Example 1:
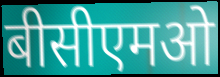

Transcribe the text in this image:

बीसीएमओ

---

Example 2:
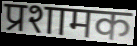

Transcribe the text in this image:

प्रशामक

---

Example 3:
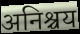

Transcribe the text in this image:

अनिश्चय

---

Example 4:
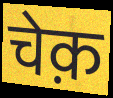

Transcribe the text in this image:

चेक़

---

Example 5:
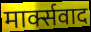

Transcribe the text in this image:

मार्क्सवाद